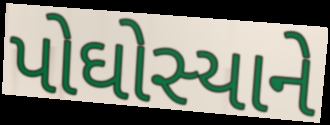
પોઘોસ્યાને